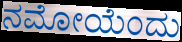
ನಮೋಯೆಂದು